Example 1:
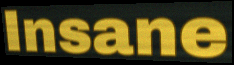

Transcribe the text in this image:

Insane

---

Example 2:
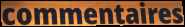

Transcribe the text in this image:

commentaires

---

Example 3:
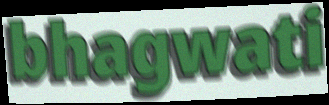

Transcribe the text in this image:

bhagwati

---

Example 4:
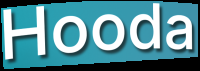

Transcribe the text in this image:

Hooda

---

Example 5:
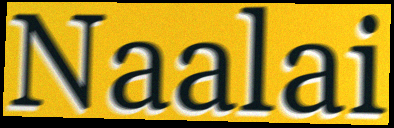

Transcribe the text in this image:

Naalai